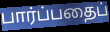
பார்ப்பதைப்